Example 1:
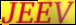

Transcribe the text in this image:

JEEV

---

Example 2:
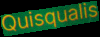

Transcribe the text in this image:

Quisqualis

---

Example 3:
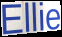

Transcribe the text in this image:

Ellie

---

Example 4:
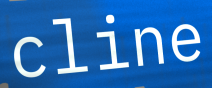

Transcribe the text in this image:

cline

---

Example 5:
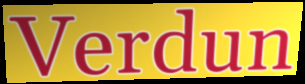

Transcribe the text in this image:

Verdun